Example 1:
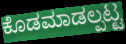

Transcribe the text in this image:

ಕೊಡಮಾಡಲ್ಪಟ್ಟ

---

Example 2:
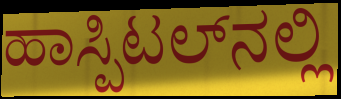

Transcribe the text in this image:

ಹಾಸ್ಪಿಟಲ್‌ನಲ್ಲಿ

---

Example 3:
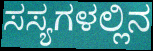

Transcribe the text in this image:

ಸಸ್ಯಗಳಲ್ಲಿನ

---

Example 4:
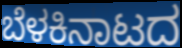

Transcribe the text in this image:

ಬೆಳಕಿನಾಟದ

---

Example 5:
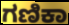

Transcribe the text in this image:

ಗಣಿಕಾ